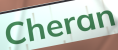
Cheran